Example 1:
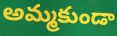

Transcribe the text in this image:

అమ్మకుండా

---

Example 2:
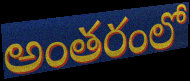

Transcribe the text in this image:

అంతరంలో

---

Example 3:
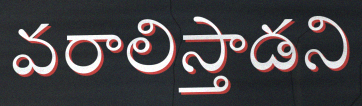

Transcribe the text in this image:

వరాలిస్తాడని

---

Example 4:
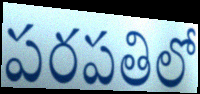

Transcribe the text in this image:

పరపతిలో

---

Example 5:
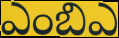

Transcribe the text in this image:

ఎంబిఎ